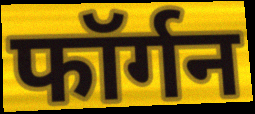
फॉर्गन